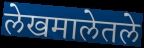
लेखमालेतले